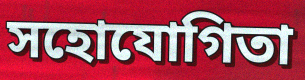
সহোযোগিতা